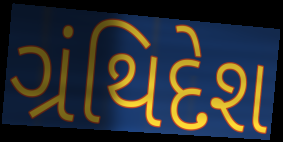
ગ્રંથિદેશ